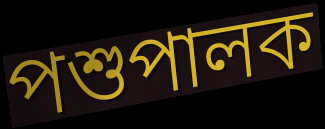
পশুপালক